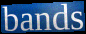
bands